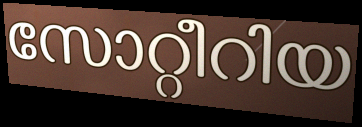
സോറ്റീറിയ